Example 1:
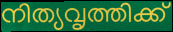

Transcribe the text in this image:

നിത്യവൃത്തിക്ക്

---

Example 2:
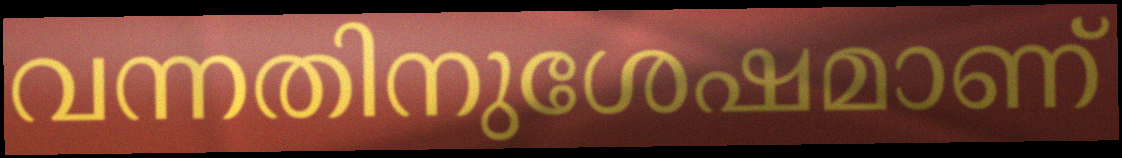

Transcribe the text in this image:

വന്നതിനുശേഷമാണ്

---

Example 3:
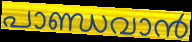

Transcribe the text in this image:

പാണ്ഡവാൻ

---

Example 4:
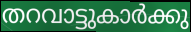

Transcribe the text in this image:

തറവാട്ടുകാർക്കു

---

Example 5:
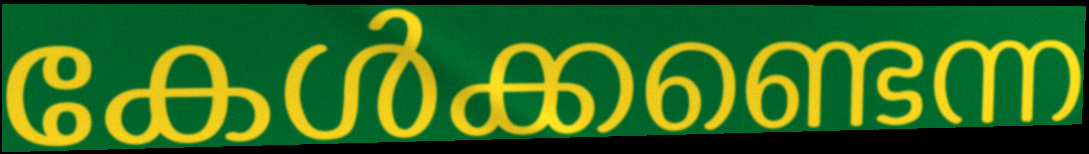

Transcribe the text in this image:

കേൾക്കണ്ടെന്ന